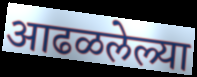
आढळलेल्या